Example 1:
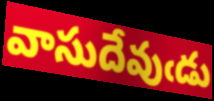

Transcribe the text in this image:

వాసుదేవుఁడు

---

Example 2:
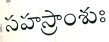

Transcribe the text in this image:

సహస్రాంశుః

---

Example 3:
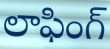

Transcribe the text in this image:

లాఫింగ్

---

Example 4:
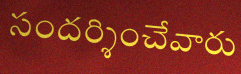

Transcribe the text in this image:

సందర్శించేవారు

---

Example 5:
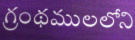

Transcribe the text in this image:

గ్రంథములలోని